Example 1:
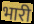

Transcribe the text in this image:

भारी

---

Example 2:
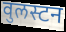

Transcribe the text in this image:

वुलस्टन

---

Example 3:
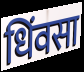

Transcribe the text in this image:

धिंवसा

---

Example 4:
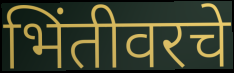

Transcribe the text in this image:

भिंतीवरचे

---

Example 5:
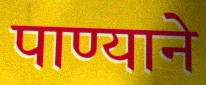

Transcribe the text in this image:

पाण्याने